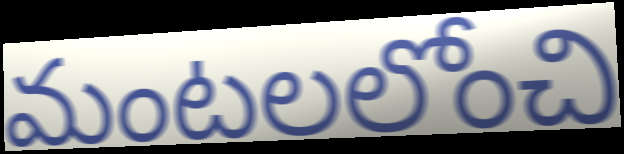
మంటలలోంచి